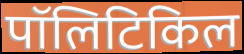
पॉलिटिकिल